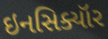
ઇનસિક્યૉર